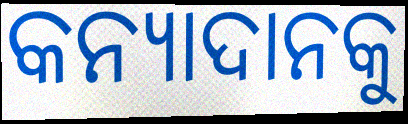
କନ୍ୟାଦାନକୁ